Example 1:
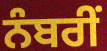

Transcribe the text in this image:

ਨੰਬਰੀਂ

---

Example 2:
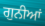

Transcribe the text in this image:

ਗੁਨੀਆਂ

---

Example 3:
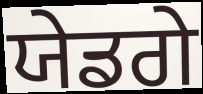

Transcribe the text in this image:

ਯੇਡਗੇ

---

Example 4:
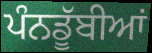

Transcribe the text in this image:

ਪੰਨਡੂੱਬੀਆਂ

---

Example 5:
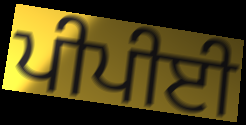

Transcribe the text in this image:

ਪੀਪੀਈ